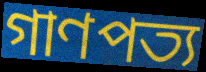
গাণপত্য